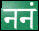
ननं